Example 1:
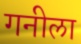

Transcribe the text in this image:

गनीला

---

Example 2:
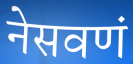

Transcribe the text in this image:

नेसवणं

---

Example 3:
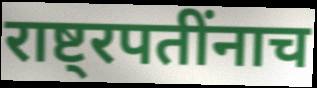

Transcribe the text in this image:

राष्ट्रपतींनाच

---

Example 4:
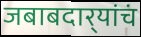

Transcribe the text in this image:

जबाबदार्‍यांचं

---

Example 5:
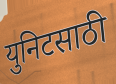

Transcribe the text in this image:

युनिटसाठी